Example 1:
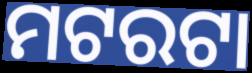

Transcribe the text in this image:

ମଟରଟା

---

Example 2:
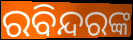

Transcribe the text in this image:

ରବିନ୍ଦରଙ୍କ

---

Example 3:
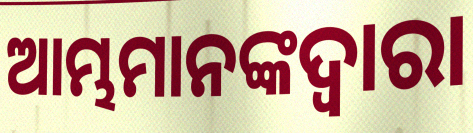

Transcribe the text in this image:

ଆମ୍ଭମାନଙ୍କଦ୍ୱାରା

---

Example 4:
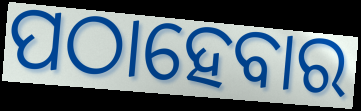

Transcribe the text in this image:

ପଠାହେବାର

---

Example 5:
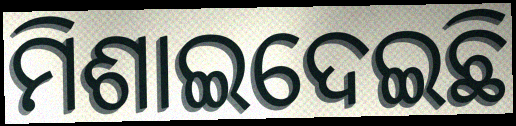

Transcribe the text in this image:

ମିଶାଇଦେଇଛି